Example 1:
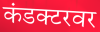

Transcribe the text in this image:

कंडक्टरवर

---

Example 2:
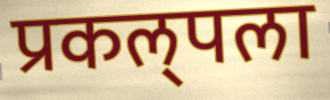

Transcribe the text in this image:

प्रकल्पला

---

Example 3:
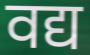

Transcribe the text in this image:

वद्य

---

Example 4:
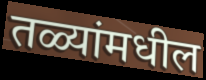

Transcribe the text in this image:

तळ्यांमधील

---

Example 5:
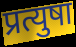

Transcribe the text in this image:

प्रत्युषा